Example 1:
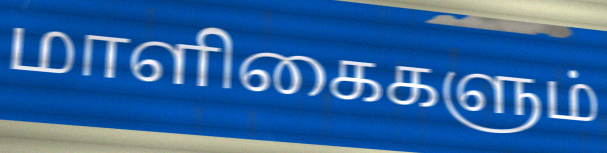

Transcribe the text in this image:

மாளிகைகளும்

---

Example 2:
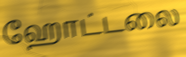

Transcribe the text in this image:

ஹோட்டலை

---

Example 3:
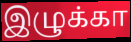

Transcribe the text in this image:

இழுக்கா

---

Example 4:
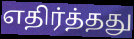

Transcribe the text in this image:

எதிர்த்தது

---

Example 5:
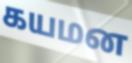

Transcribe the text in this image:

கயமன